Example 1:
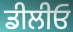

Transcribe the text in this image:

ਡੀਲੀਓ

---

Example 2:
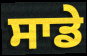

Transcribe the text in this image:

ਸਾਡੇ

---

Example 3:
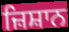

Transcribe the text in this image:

ਜ਼ਿਸ਼ਾਨ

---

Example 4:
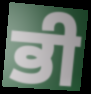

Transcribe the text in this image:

ਭੀ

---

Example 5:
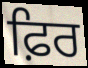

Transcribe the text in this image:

ਫ਼ਿਰ